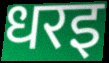
धरइ